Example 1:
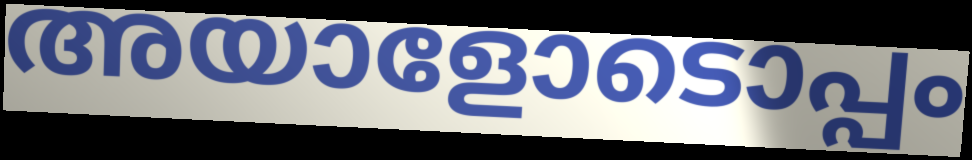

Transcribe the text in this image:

അയാളോടൊപ്പം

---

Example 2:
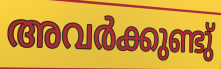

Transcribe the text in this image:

അവർക്കുണ്ടു്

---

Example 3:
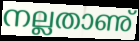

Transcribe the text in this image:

നല്ലതാണു്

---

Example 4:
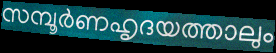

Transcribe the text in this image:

സമ്പൂർണഹൃദയത്താലും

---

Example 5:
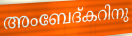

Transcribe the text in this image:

അംബേദ്കറിനു